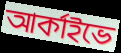
আর্কাইভে